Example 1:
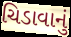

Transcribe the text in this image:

ચિડાવાનું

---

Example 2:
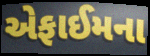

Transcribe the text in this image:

એફાઈમના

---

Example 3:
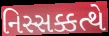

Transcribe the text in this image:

નિસ્સક્કત્થે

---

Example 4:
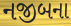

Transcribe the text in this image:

નજીબના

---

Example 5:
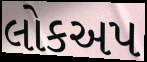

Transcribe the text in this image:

લોકઅપ